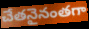
చేతనైనంతగా